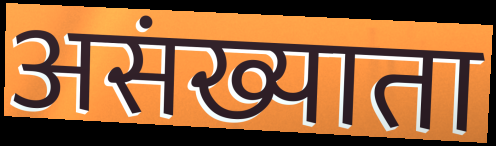
असंख्याता